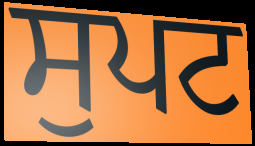
ਸੁਪਟ